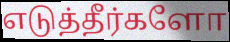
எடுத்தீர்களோ